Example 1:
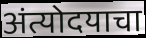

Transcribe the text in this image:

अंत्योदयाचा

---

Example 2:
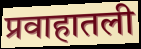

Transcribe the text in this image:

प्रवाहातली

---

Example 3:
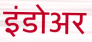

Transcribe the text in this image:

इंडोअर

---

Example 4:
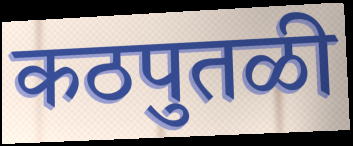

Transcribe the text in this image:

कठपुतळी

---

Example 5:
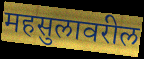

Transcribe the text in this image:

महसुलावरील